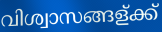
വിശ്വാസങ്ങള്ക്ക്